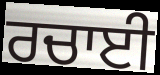
ਰਚਾਈ